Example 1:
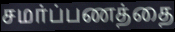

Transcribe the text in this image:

சமர்ப்பணத்தை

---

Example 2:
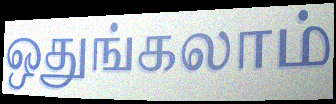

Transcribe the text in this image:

ஒதுங்கலாம்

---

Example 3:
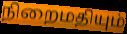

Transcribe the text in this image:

நிறைமதியும்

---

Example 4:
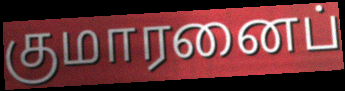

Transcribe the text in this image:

குமாரனைப்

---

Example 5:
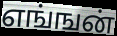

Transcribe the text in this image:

எங்ஙன்